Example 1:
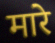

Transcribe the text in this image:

मारे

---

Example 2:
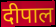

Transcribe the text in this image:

दीपाल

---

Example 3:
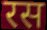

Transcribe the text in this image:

रस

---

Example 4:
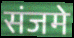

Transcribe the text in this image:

संजमे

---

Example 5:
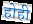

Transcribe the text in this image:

होही